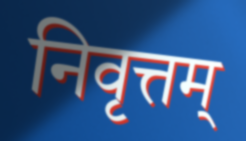
निवृत्तम्